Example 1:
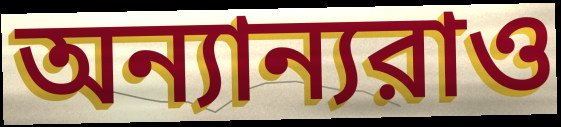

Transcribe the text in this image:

অন্যান্যরাও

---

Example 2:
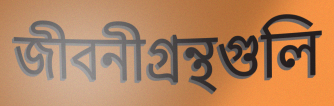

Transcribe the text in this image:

জীবনীগ্রন্থগুলি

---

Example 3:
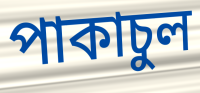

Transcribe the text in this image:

পাকাচুল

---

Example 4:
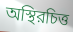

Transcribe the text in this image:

অস্থিরচিত্ত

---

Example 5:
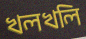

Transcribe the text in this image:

খলখলি